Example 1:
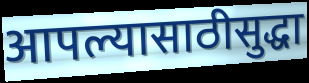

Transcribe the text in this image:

आपल्यासाठीसुद्धा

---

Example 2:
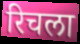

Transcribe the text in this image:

रिचला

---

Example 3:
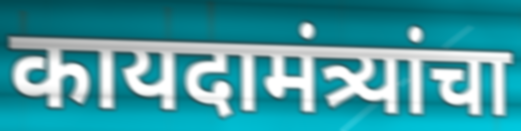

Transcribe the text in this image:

कायदामंत्र्यांचा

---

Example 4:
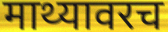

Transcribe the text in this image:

माथ्यावरच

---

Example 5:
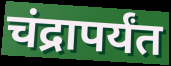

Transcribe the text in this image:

चंद्रापर्यंत